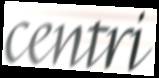
centri